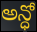
అన్ధో